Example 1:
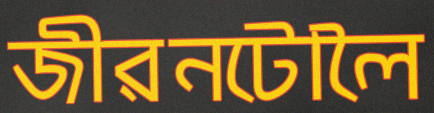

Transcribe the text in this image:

জীৱনটোলৈ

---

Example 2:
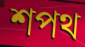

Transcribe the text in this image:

শপথ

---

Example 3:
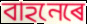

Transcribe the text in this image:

বাহনেৰে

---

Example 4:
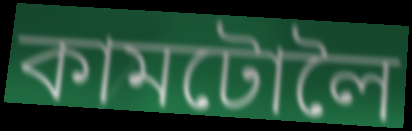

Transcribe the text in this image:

কামটোলৈ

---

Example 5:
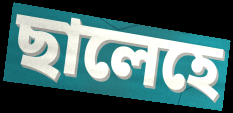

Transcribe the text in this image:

ছালেহে